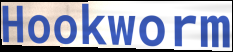
Hookworm